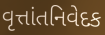
વૃત્તાંતનિવેદક